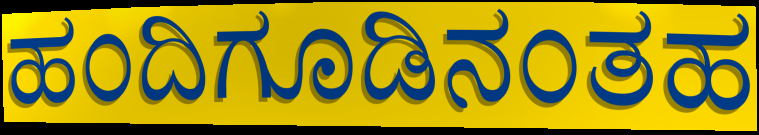
ಹಂದಿಗೂಡಿನಂತಹ